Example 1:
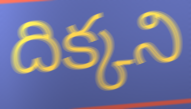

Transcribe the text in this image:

దిక్కని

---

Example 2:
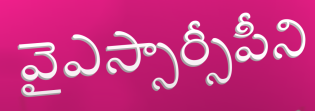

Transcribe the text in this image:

వైఎస్సార్సీపీని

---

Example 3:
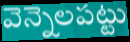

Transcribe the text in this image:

వెన్నెలపట్టు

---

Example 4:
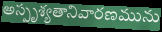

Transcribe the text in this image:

అస్పృశ్యతానివారణమును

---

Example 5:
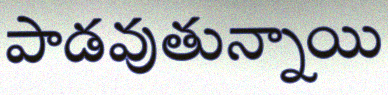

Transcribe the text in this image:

పాడవుతున్నాయి